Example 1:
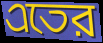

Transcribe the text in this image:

এতের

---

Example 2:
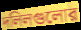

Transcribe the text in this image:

দলিলগুলোর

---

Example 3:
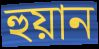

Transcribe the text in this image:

হুয়ান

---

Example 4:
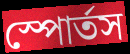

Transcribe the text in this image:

স্পোর্তস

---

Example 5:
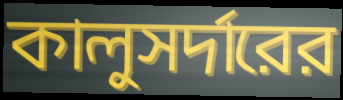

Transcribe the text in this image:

কালুসর্দারের